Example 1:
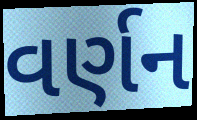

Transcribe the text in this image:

વર્ણન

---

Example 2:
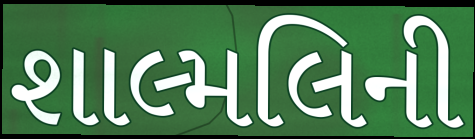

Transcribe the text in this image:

શાલ્મલિની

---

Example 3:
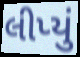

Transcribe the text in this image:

લીપ્યું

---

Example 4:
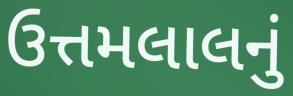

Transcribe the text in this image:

ઉત્તમલાલનું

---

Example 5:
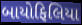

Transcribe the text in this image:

બાયોફિલિયા